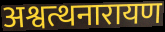
अश्वत्थनारायण